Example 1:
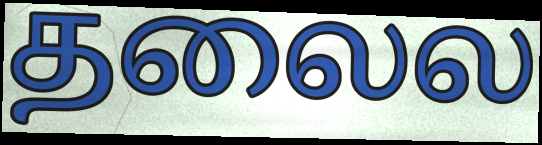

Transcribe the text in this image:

தலைல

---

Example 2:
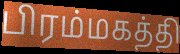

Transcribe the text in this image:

பிரம்மகத்தி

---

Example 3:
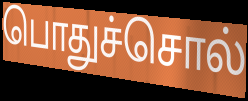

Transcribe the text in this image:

பொதுச்சொல்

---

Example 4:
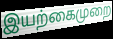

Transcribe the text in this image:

இயற்கைமுறை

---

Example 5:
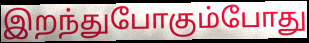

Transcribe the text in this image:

இறந்துபோகும்போது